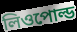
লিওপোল্ড